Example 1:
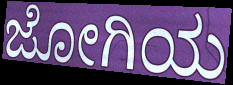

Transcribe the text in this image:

ಜೋಗಿಯ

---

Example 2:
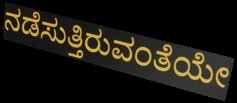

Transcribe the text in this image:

ನಡೆಸುತ್ತಿರುವಂತೆಯೇ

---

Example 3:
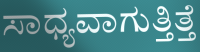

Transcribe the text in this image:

ಸಾಧ್ಯವಾಗುತ್ತಿತ್ತೆ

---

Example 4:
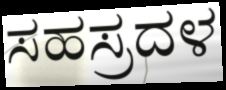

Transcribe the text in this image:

ಸಹಸ್ರದಳ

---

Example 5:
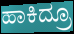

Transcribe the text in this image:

ಹಾಕಿದ್ರೂ